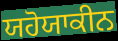
ਯਹੋਯਾਕੀਨ